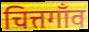
चित्तगाँव